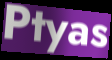
Ptyas